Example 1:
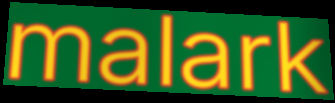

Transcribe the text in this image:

malark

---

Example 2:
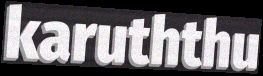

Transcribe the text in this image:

karuththu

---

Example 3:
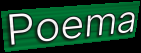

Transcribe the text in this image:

Poema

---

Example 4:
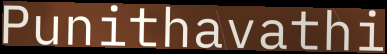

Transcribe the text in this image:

Punithavathi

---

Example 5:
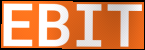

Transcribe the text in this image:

EBIT